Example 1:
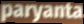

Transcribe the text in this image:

paryanta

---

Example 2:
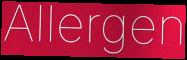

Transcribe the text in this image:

Allergen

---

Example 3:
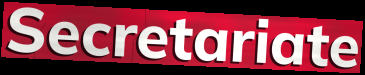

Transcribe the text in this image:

Secretariate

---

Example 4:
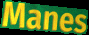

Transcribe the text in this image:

Manes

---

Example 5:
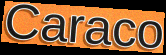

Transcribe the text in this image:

Caraco